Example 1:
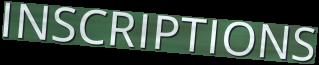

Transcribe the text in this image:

INSCRIPTIONS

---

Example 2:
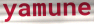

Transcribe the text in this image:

yamune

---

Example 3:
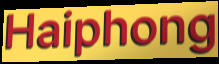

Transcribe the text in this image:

Haiphong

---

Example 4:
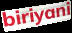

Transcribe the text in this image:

biriyani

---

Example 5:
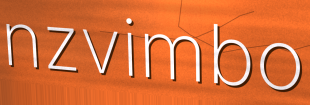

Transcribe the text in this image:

nzvimbo